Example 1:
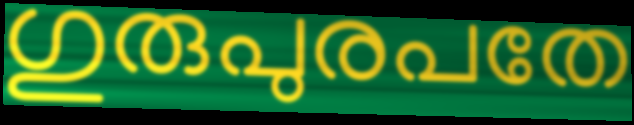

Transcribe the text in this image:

ഗുരുപുരപതേ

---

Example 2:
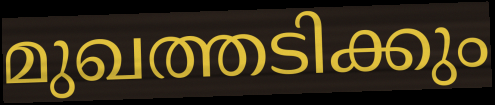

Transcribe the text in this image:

മുഖത്തടിക്കും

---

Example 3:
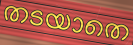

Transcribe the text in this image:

തടയാതെ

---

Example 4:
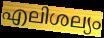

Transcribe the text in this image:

എലിശല്യം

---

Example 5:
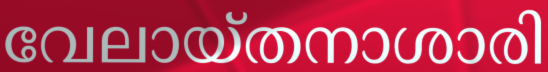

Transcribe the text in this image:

വേലായ്തനാശാരി